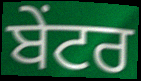
ਬੇਂਟਰ